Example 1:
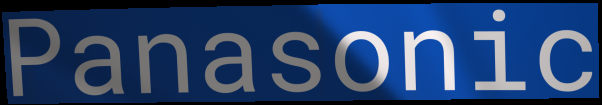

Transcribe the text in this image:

Panasonic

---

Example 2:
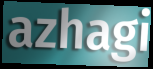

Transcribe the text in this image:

azhagi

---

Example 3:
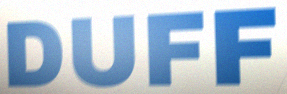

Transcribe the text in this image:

DUFF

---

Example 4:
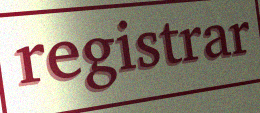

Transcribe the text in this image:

registrar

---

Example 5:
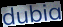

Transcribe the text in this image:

dubia